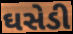
ઘસેડી